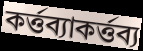
কর্ত্তব্যাকর্ত্তব্য